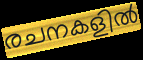
രചനകളിൽ